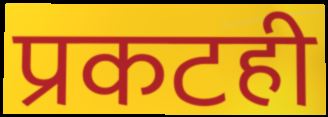
प्रकटही